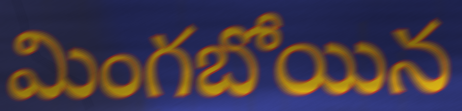
మింగబోయిన